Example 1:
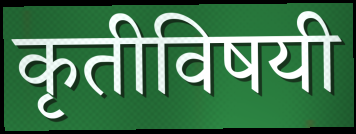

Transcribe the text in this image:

कृतीविषयी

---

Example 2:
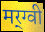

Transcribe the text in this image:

मर्ग्वी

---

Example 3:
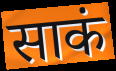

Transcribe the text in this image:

साकं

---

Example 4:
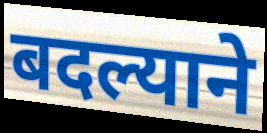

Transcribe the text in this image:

बदल्याने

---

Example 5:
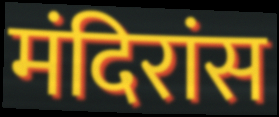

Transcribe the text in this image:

मंदिरांस